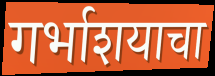
गर्भाशयाचा